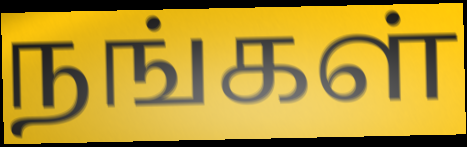
நங்கள்